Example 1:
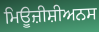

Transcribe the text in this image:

ਮਿਊਜ਼ੀਸ਼ੀਅਨਸ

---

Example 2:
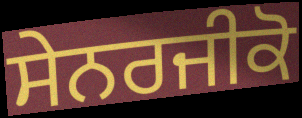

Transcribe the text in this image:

ਸੇਨਰਜੀਕੋ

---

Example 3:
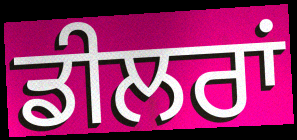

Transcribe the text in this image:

ਡੀਲਰਾਂ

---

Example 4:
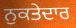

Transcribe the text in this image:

ਨੁਕਤੇਦਾਰ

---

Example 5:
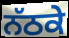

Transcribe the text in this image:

ਨੱਠਕੇ